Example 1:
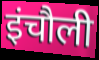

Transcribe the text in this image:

इंचौली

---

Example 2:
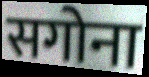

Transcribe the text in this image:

सगोना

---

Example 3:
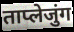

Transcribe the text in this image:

ताप्लेजुंग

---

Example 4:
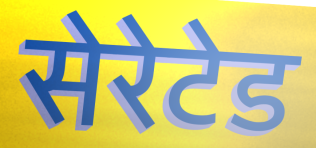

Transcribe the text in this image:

सेरेटेड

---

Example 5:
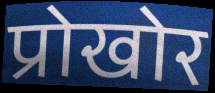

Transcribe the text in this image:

प्रोखोर